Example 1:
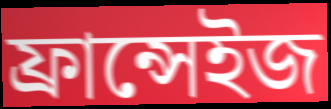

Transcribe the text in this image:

ফ্ৰান্সেইজ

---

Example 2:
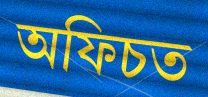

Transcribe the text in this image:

অফিচত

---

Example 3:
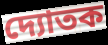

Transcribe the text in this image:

দ্যোতক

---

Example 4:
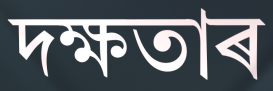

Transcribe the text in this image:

দক্ষতাৰ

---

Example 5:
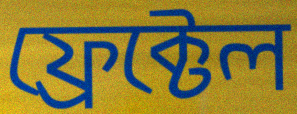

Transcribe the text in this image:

ফ্ৰেক্টেল